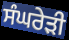
ਸੰਘਰੇੜੀ